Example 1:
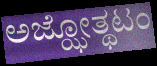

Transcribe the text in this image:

ಅಜ್ಝೋತ್ಥಟಂ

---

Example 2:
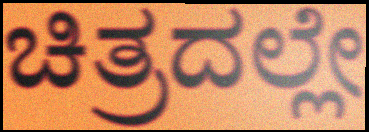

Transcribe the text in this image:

ಚಿತ್ರದಲ್ಲೇ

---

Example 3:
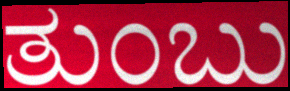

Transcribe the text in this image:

ತುಂಬು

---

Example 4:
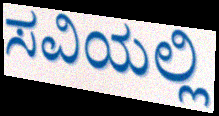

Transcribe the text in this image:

ಸವಿಯಲ್ಲಿ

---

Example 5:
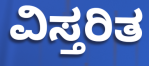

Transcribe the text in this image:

ವಿಸ್ತರಿತ